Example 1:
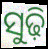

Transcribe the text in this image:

ସୁଢ଼ି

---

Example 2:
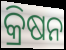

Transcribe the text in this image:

କ୍ରିଷନ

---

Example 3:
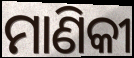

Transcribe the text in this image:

ମାଣିକୀ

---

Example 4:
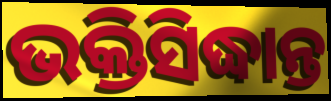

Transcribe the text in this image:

ଭକ୍ତିସିଦ୍ଧାନ୍ତ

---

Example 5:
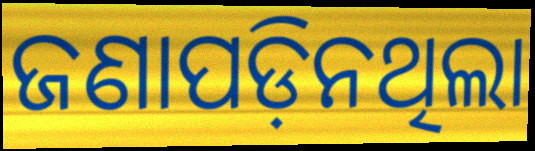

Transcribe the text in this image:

ଜଣାପଡ଼ିନଥିଲା